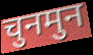
चुनमुन